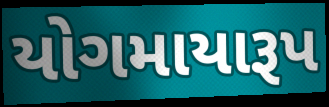
યોગમાયારૂપ